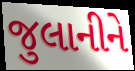
જુલાનીને